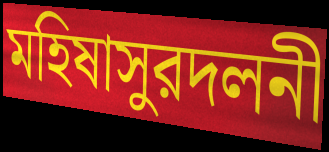
মহিষাসুরদলনী